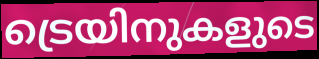
ട്രെയിനുകളുടെ